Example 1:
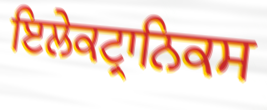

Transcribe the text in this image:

ਇਲੇਕਟ੍ਰਾਨਿਕਸ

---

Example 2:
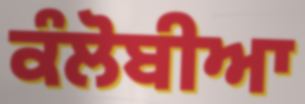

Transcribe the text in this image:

ਕੰਲੋਬੀਆ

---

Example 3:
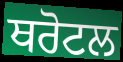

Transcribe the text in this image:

ਥਰੋਟਲ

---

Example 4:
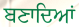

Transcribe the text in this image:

ਬਣਾਦਿਆਂ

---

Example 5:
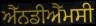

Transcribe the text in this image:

ਐੱਨਡੀਐੱਮਸੀ